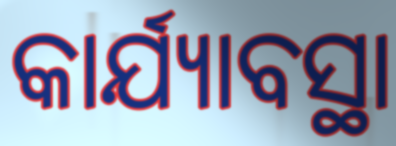
କାର୍ଯ୍ୟାବସ୍ଥା